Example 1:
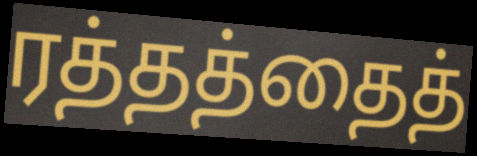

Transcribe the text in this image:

ரத்தத்தைத்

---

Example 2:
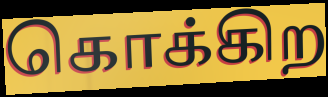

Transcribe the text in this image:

கொக்கிற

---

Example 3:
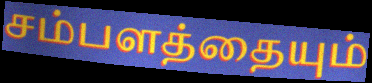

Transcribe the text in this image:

சம்பளத்தையும்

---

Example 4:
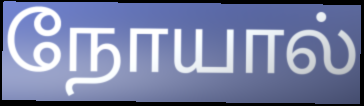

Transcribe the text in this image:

நோயால்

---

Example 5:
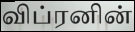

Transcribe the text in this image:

விப்ரனின்